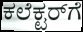
ಕಲೆಕ್ಟರ್‌ಗೆ